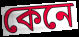
কেনে